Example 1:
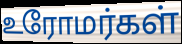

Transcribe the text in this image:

உரோமர்கள்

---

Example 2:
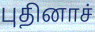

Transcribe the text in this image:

புதினாச்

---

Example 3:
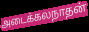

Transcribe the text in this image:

அடைக்கலநாதன்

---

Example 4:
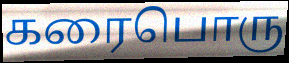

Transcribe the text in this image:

கரைபொரு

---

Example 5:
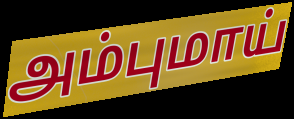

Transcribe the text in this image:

அம்புமாய்